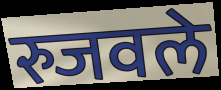
रुजवले